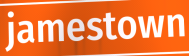
jamestown